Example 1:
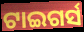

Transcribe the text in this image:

ଟାଇଗର୍ସ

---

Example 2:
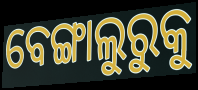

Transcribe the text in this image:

ବେଙ୍ଗାଲୁରୁକୁ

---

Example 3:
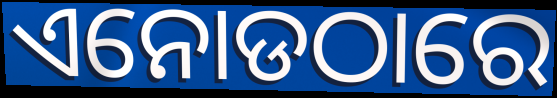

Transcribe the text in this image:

ଏନୋଡଠାରେ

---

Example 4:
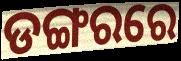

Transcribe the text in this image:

ଡଙ୍ଗରରେ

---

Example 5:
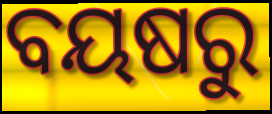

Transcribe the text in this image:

ବୟଷରୁ